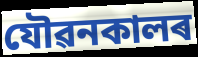
যৌৱনকালৰ